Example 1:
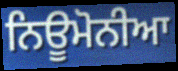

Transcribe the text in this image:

ਨਿਊਮੋਨੀਆ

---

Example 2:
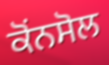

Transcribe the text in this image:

ਕੋਂਨਸੋਲ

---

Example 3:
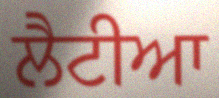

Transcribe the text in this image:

ਲੈਟੀਆ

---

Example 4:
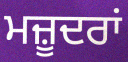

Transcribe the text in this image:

ਮਜ਼ੂਦਰਾਂ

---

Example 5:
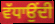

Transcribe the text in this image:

ਵੱਧਾਉਂਦੀ